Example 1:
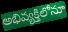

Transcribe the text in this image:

అభివ్యక్తిలోనూ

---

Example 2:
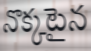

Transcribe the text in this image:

నొక్కటైన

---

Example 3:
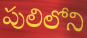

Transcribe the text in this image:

పులిలోని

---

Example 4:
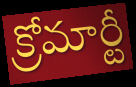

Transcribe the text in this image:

క్రోమార్టీ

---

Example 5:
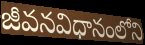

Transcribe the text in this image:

జీవనవిధానంలోని